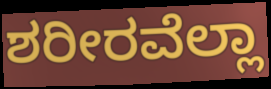
ಶರೀರವೆಲ್ಲಾ